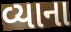
વ્યાના